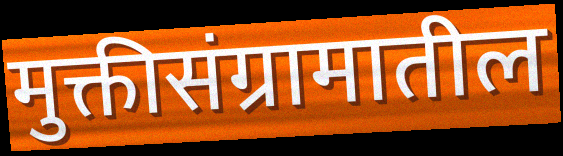
मुक्तीसंग्रामातील